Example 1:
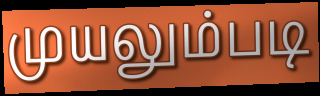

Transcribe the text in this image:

முயலும்படி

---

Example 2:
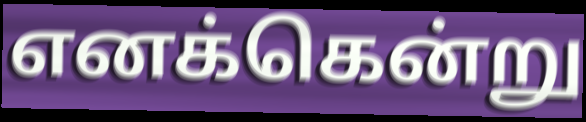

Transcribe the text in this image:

எனக்கென்று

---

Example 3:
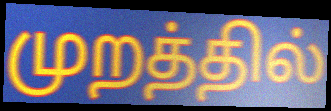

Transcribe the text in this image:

முறத்தில்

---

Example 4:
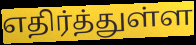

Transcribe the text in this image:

எதிர்த்துள்ள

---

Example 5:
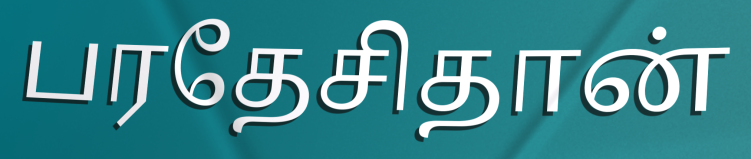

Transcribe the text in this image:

பரதேசிதான்